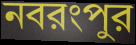
নবরংপুর